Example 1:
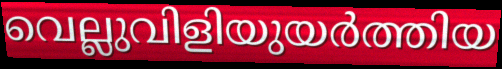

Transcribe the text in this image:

വെല്ലുവിളിയുയർത്തിയ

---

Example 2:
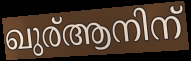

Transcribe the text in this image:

ഖുര്ആനിന്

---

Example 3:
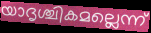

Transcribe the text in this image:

യാദൃശ്ചികമല്ലെന്ന്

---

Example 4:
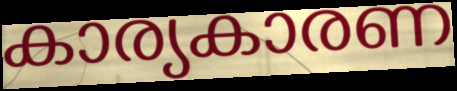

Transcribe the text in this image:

കാര്യകാരണ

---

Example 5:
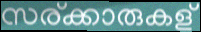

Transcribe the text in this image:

സര്ക്കാരുകള്